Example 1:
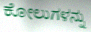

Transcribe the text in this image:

ಕೋಲುಗಳನ್ನು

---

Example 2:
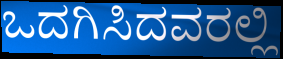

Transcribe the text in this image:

ಒದಗಿಸಿದವರಲ್ಲಿ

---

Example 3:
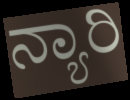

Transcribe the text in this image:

ನ್ಯಾರಿ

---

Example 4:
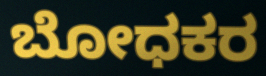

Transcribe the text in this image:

ಬೋಧಕರ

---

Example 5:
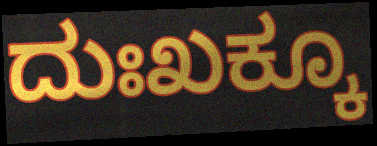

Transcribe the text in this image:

ದುಃಖಕ್ಕೂ